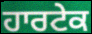
ਹਾਰਟੇਕ